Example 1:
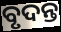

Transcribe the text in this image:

ବୃଦନ୍ତ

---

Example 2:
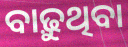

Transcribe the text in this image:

ବାଢ଼ୁଥିବା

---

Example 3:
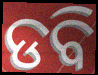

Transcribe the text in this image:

ଡବି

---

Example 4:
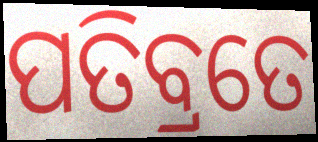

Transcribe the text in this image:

ପତିବ୍ରତେ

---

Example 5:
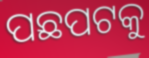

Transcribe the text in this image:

ପଛପଟକୁ